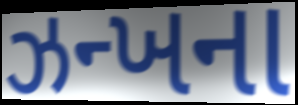
ઝન્ખના